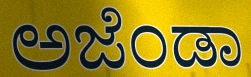
ಅಜೆಂಡಾ